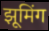
झूमिंग